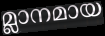
മ്ലാനമായ